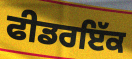
ਫੀਡਰਇੱਕ